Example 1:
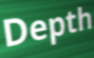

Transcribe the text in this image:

Depth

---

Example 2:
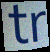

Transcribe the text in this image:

tr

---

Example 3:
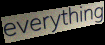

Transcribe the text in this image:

everything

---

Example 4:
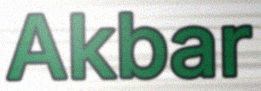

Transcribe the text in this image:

Akbar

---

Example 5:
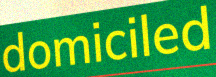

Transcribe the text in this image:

domiciled